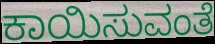
ಕಾಯಿಸುವಂತೆ